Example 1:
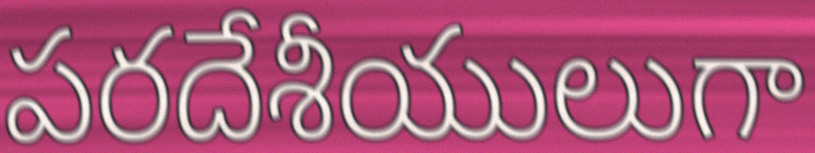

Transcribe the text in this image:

పరదేశీయులుగా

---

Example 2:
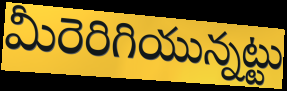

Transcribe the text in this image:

మీరెరిగియున్నట్టు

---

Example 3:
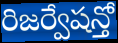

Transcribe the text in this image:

రిజర్వేషన్తో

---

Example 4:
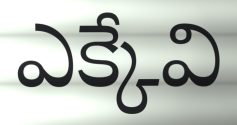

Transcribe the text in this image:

ఎక్కేవి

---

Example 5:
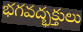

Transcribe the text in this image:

భగవద్భక్తులు